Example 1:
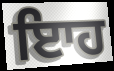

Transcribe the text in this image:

ਇਾਹ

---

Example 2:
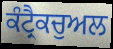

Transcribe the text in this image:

ਕੰਟ੍ਰੈਕਚੁਅਲ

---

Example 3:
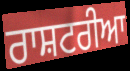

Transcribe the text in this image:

ਰਾਸ਼ਟਰੀਆ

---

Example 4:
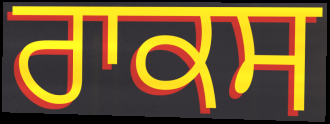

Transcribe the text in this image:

ਰਾਕਸ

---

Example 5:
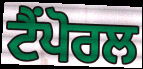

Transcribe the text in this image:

ਟੈਂਪੋਰਲ